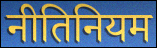
नीतिनियम